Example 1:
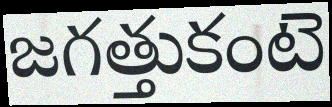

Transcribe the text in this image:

జగత్తుకంటె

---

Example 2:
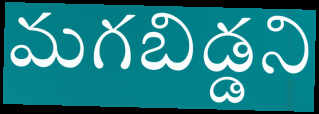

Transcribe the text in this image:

మగబిడ్డని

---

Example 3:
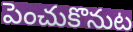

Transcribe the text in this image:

పెంచుకొనుట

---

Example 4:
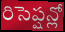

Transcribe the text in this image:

రిసెప్షన్లో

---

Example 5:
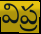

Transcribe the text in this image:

విప్ర